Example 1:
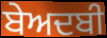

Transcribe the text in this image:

ਬੇਅਦਬੀ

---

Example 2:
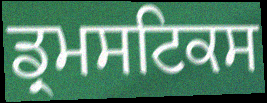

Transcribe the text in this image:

ਡ੍ਰਮਸਟਿਕਸ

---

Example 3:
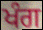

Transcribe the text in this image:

ਖੰਗ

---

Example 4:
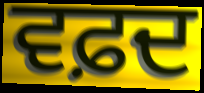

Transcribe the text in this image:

ਵਫ਼ਦ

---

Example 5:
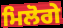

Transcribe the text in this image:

ਮਿਲੋਗੇ